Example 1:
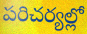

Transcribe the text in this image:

పరిచర్యల్లో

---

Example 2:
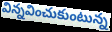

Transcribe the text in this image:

విన్నవించుకుంటున్న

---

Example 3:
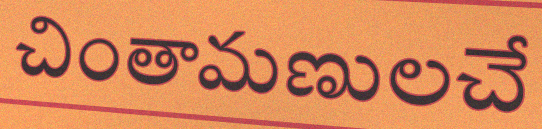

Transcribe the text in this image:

చింతామణులచే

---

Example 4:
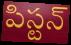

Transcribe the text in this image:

పిస్టన్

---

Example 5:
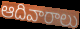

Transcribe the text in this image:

ఆదివారాలు